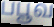
பபூவ